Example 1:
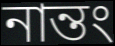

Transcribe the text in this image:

নান্তং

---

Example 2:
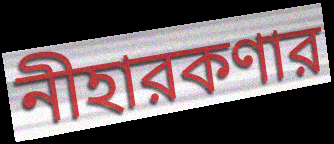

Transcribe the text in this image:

নীহারকণার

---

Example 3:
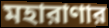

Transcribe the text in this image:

মহারাণার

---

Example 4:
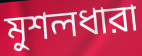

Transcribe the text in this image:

মুশলধারা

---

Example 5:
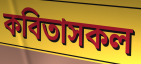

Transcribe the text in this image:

কবিতাসকল